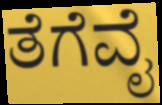
ತೆಗೆವೈ